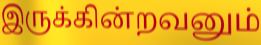
இருக்கின்றவனும்